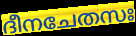
ദീനചേതസഃ